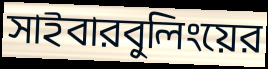
সাইবারবুলিংয়ের